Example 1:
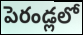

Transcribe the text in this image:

పెరండ్లలో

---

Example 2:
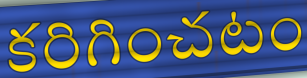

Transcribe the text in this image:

కరిగించటం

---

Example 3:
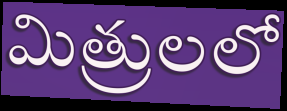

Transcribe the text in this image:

మిత్రులలో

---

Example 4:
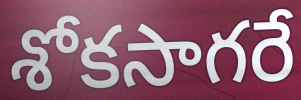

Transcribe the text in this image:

శోకసాగరే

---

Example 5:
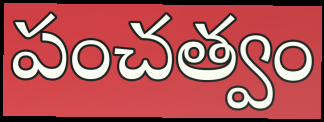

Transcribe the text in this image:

పంచత్వం